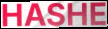
HASHE